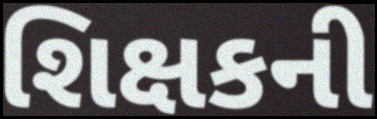
શિક્ષકની